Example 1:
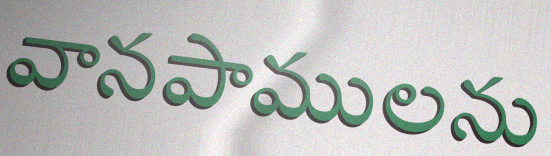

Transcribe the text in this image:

వానపాములను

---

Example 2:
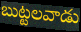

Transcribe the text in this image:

బుట్టలవాడు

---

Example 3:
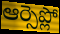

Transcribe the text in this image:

ఆర్సెప్లో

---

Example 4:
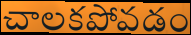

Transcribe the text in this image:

చాలకపోవడం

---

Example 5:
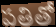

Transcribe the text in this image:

పతితో